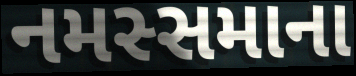
નમસ્સમાના